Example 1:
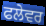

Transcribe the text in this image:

ਫਲੇਵਰ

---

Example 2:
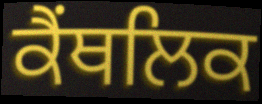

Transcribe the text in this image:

ਕੈਂਥਲਿਕ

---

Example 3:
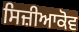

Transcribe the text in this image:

ਸਿਜ਼ੀਆਕੋਵ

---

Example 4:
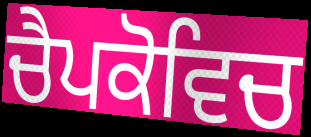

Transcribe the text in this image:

ਚੈਪਕੋਵਿਚ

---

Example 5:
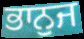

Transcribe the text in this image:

ਭਾਨੁਜ